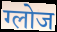
ग्लोज